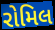
રોમિલ